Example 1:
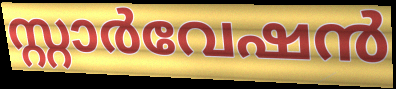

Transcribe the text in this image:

സ്റ്റാർവേഷൻ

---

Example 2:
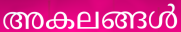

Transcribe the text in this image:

അകലങ്ങൾ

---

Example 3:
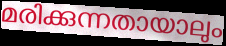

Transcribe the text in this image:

മരിക്കുന്നതായാലും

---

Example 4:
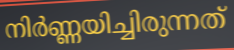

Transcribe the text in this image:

നിർണ്ണയിച്ചിരുന്നത്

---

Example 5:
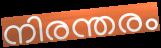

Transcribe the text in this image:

നിരന്തരം